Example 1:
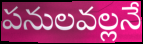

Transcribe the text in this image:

పనులవల్లనే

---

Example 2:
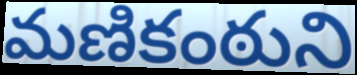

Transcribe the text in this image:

మణికంఠుని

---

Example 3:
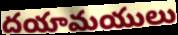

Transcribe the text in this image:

దయామయులు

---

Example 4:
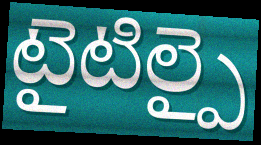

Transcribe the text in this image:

టైటిల్పై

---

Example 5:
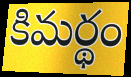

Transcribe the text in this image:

కిమర్థం